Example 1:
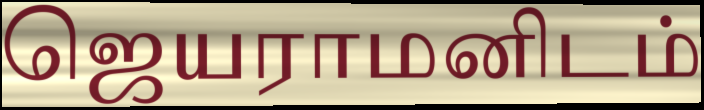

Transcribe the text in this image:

ஜெயராமனிடம்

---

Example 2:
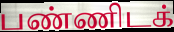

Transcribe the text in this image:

பண்ணிடக்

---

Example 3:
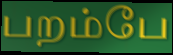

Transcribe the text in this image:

பறம்பே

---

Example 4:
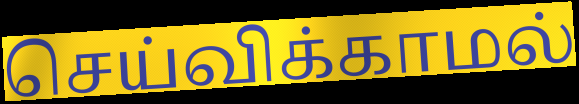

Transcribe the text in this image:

செய்விக்காமல்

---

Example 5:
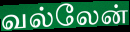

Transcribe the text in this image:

வல்லேன்